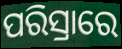
ପରିସ୍ରାରେ